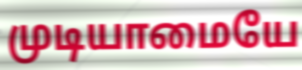
முடியாமையே